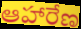
ఆహారేణ